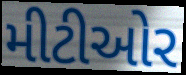
મીટીઓર